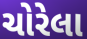
ચોરેલા